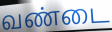
வண்டை